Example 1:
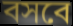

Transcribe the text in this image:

বসবে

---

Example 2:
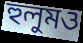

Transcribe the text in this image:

হুলুমও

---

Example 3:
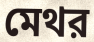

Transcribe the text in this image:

মেথর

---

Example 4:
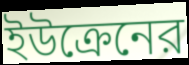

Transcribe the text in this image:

ইউক্রেনের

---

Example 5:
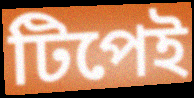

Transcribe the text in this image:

টিপেই